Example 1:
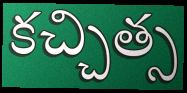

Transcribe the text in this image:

కచ్చిత్స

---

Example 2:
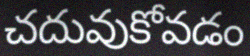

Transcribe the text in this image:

చదువుకోవడం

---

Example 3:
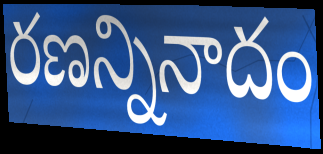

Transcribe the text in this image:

రణన్నినాదం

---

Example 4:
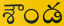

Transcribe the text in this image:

శౌండ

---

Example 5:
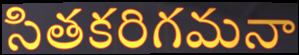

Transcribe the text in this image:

సితకరిగమనా